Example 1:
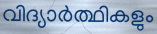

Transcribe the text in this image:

വിദ്യാർത്ഥികളും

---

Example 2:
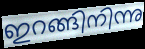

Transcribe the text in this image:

ഇറങ്ങിനിന്നു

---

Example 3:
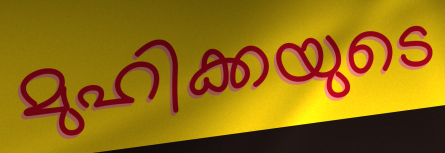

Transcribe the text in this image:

മുഹിക്കയുടെ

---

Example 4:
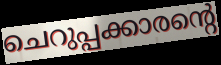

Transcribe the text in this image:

ചെറുപ്പക്കാരന്റെ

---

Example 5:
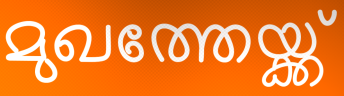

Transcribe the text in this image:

മുഖത്തേയ്ക്ക്